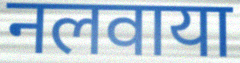
नलवाया